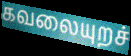
கவலையுறச்